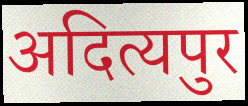
अदित्यपुर